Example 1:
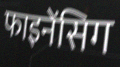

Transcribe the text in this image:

फाइनेंसिग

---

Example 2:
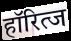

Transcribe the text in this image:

हॉरित्ज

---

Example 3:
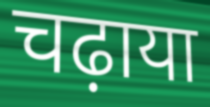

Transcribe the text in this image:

चढ़ाया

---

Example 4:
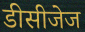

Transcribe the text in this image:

डीसीजेज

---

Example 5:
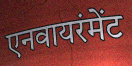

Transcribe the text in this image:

एनवायरंमेंट